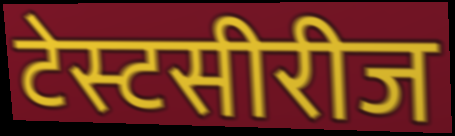
टेस्टसीरीज